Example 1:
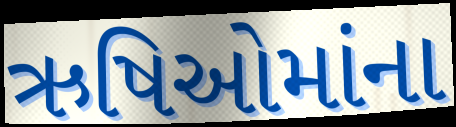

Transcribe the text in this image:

ઋષિઓમાંના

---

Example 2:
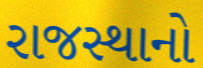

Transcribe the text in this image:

રાજસ્થાનો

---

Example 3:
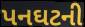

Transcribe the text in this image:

પનઘટની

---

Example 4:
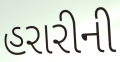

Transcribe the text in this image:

હરારીની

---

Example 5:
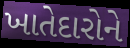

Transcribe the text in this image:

ખાતેદારોને